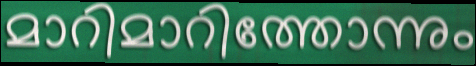
മാറിമാറിത്തോന്നും